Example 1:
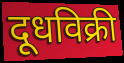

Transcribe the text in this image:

दूधविक्री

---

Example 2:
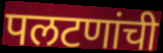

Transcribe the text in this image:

पलटणांची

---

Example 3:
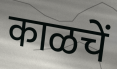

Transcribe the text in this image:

काळचें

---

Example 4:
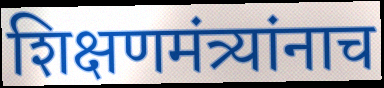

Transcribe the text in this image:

शिक्षणमंत्र्यांनाच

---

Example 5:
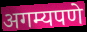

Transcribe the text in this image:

अगम्यपणे